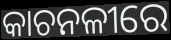
କାଚନଳୀରେ